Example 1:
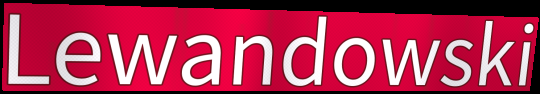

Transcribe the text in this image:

Lewandowski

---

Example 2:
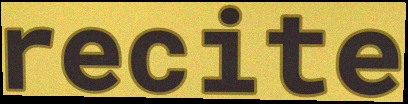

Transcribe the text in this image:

recite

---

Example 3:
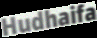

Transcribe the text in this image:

Hudhaifa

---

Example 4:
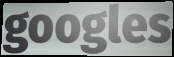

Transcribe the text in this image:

googles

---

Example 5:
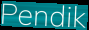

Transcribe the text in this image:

Pendik